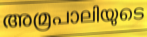
അമ്രപാലിയുടെ